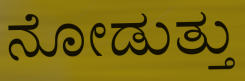
ನೋಡುತ್ತು